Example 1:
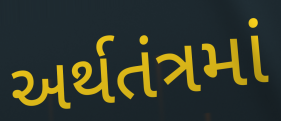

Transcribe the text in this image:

અર્થતંત્રમાં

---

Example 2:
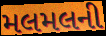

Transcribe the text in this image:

મલમલની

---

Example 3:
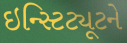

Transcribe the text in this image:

ઇન્સ્ટિટ્યૂટને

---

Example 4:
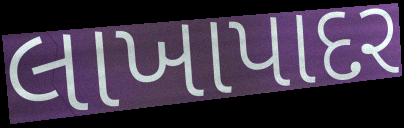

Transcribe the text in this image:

લાખાપાદર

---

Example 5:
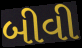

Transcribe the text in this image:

બીવી